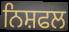
ਨਿਸ਼ਫਲ